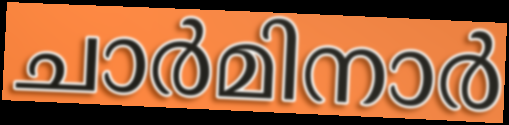
ചാർമിനാർ